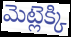
మెట్లెక్కి